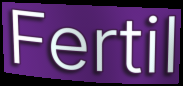
Fertil